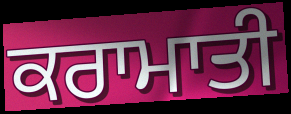
ਕਰਾਮਾਤੀ